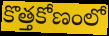
కొత్తకోణంలో